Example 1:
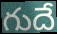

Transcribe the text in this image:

గుదే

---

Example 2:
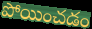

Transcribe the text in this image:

పోయించడం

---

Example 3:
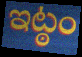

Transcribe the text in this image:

ఇట్ఠం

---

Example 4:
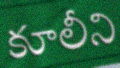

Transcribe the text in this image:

కూలీని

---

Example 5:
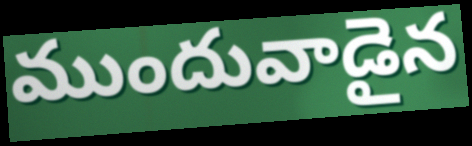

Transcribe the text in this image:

ముందువాడైన